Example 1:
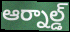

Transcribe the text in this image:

ఆర్నాల్డ్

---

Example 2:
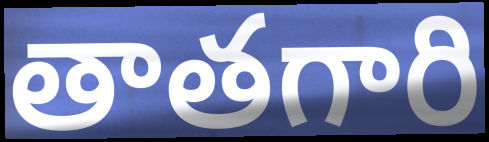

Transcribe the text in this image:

తాతగారి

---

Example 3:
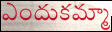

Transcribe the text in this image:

ఎందుకమ్మా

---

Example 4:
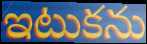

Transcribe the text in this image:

ఇటుకను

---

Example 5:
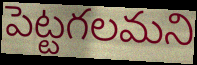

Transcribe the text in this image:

పెట్టగలమని